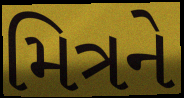
મિત્રને